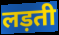
लड़ती